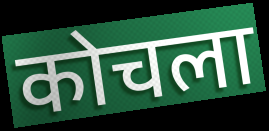
कोचला